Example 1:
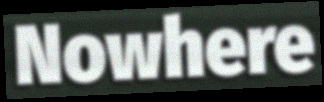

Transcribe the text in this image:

Nowhere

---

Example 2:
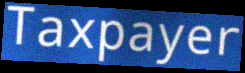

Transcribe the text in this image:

Taxpayer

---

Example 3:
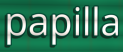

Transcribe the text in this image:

papilla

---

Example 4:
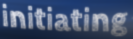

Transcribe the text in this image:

initiating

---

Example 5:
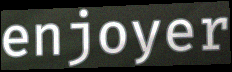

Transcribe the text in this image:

enjoyer